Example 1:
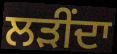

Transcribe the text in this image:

ਲੜੀਂਦਾ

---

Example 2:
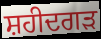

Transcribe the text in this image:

ਸ਼ਹੀਦਗੜ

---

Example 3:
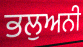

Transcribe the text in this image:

ਭਲੁਅਨੀ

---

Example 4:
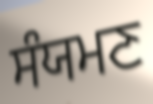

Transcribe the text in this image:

ਸੰਯਮਣ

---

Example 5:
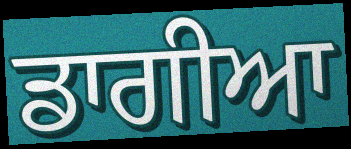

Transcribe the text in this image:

ਡਾਗੀਆ